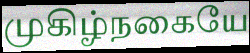
முகிழ்நகையே